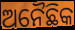
ଅନୈଛିକ